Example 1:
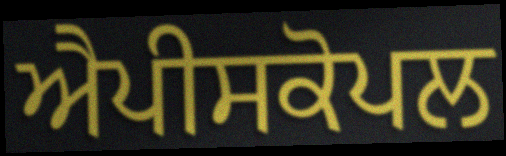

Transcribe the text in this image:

ਐਪੀਸਕੋਪਲ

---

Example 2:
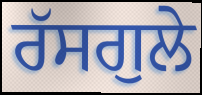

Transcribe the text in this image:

ਰੱਸਗੁਲੇ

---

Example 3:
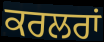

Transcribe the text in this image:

ਕਰਲਰਾਂ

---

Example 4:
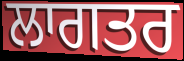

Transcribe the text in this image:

ਲਾਗਤਰ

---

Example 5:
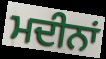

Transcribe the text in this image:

ਮਦੀਨਾਂ